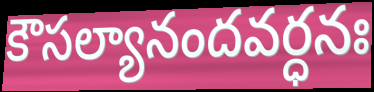
కౌసల్యానందవర్ధనః